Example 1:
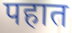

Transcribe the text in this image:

पहात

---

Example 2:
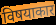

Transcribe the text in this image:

विषयाकार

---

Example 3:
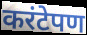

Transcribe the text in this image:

करंटेपण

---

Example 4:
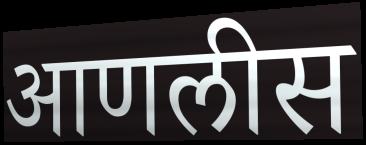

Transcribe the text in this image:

आणलीस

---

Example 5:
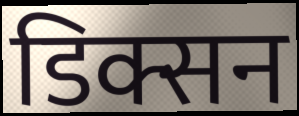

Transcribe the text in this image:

डिक्सन